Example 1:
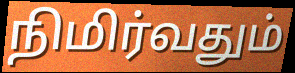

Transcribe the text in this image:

நிமிர்வதும்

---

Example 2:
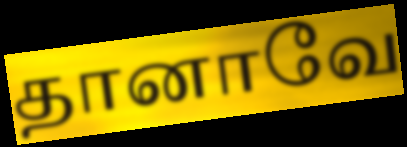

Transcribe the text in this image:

தானாவே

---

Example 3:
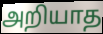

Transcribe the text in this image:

அறியாத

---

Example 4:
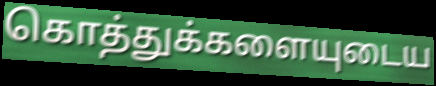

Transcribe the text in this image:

கொத்துக்களையுடைய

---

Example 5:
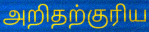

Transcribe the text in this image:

அறிதற்குரிய